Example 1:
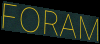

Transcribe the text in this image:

FORAM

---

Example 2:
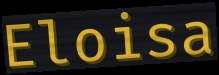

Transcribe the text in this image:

Eloisa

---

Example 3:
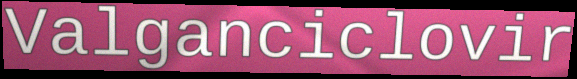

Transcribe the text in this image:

Valganciclovir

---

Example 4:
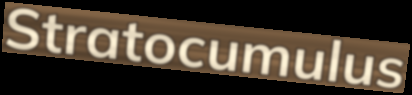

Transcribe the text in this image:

Stratocumulus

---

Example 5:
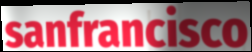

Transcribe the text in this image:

sanfrancisco